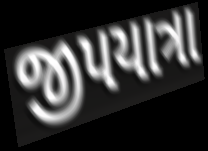
જીપયાત્રા